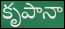
కృపానా